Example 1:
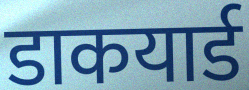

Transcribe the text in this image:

डाकयार्ड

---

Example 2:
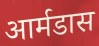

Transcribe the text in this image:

आर्मडास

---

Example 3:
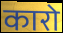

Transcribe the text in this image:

कारो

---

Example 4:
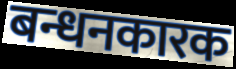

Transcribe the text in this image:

बन्धनकारक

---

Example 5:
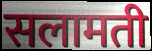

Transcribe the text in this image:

सलामती